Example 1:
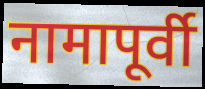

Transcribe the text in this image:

नामापूर्वी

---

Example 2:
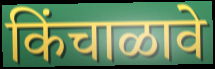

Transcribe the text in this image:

किंचाळावे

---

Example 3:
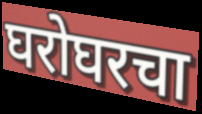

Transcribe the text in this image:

घरोघरचा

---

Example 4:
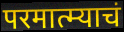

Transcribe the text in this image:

परमात्म्याचं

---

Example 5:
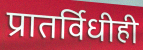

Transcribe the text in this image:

प्रातर्विधीही